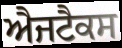
ਐਜਟੈਕਸ